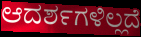
ಆದರ್ಶಗಳಿಲ್ಲದೆ